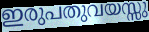
ഇരുപതുവയസ്സു